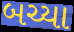
બચ્યા